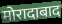
मोरादाबाद